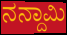
ನನ್ದಾಮಿ